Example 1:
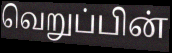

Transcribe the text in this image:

வெறுப்பின்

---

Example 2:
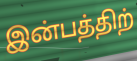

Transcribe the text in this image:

இன்பத்திற்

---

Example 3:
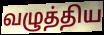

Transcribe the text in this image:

வழுத்திய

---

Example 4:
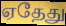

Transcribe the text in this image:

ஏதேது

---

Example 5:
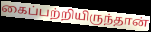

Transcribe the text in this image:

கைப்பற்றியிருந்தான்